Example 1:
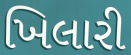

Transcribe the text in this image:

ખિલારી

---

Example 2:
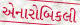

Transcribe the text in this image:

એનારોબિકલી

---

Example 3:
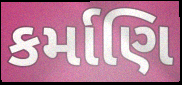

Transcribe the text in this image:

કર્માણિ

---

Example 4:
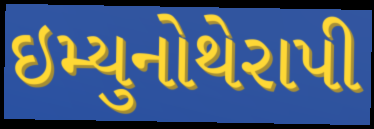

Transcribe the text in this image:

ઇમ્યુનોથેરાપી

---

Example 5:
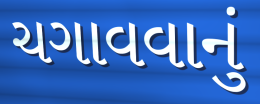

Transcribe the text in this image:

ચગાવવાનું